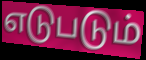
எடுபடும்